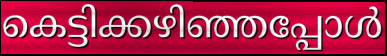
കെട്ടിക്കഴിഞ്ഞപ്പോൾ